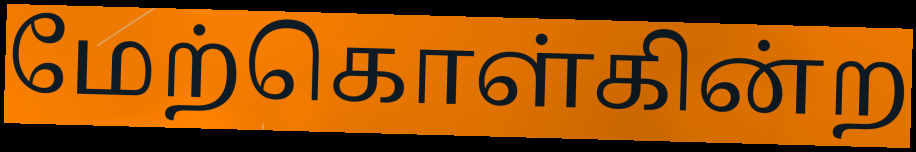
மேற்கொள்கின்ற